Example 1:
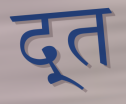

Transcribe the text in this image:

द्त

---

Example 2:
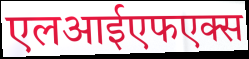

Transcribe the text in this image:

एलआईएफएक्स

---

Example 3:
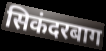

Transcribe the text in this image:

सिकंदरबाग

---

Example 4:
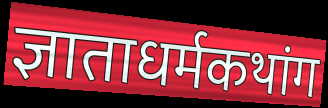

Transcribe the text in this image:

ज्ञाताधर्मकथांग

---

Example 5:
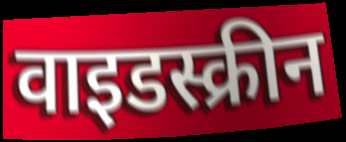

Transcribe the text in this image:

वाइडस्क्रीन